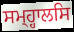
ਸਮ੍ਹ੍ਹਾਲਸਿ